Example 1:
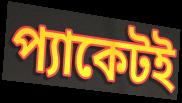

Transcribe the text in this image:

প্যাকেটই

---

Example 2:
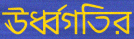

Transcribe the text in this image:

ঊর্ধ্বগতির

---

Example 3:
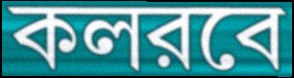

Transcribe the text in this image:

কলরবে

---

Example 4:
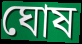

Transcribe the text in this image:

ঘোষ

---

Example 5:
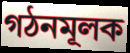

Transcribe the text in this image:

গঠনমূলক